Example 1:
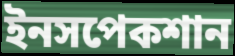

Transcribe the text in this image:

ইনসপেকশান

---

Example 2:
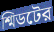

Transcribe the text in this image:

শ্মিডটের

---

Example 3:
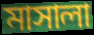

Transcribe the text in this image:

মাসালা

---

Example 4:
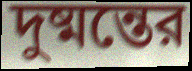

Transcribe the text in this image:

দুষ্মন্তের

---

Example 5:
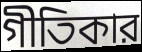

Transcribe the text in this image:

গীতিকার